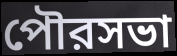
পৌরসভা